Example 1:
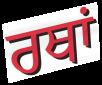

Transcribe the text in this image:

ਰਥਾਂ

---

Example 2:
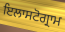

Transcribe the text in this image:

ਇਲਾਸਟੋਗ੍ਰਾਮ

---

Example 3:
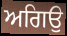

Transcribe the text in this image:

ਅਗਿਉ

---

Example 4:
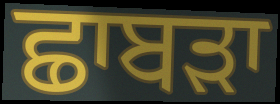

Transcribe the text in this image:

ਛਾਬੜਾ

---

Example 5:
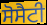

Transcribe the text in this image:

ਸੋਸੈਟੀ